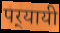
पर्यायी